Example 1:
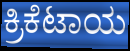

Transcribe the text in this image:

ಕ್ರಿಕೆಟಾಯ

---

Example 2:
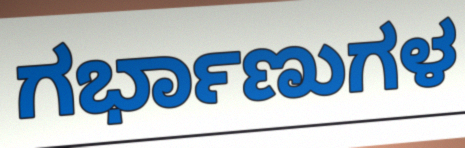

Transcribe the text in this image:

ಗರ್ಭಾಣುಗಳ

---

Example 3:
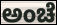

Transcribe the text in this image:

ಅಂಚೆ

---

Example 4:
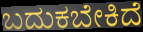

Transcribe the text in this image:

ಬದುಕಬೇಕಿದೆ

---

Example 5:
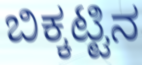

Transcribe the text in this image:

ಬಿಕ್ಕಟ್ಟಿನ